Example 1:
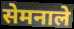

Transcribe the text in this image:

सेमनाले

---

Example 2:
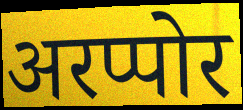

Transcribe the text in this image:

अरप्पोर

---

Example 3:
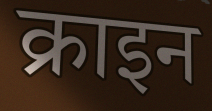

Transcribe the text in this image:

क्राइन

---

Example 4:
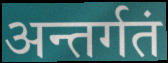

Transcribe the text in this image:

अन्तर्गतं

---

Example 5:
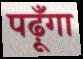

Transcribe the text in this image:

पढ़ूँगा